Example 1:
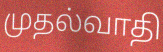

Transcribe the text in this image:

முதல்வாதி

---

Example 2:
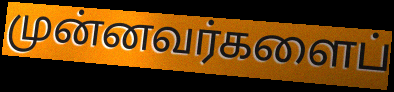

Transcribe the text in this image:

முன்னவர்களைப்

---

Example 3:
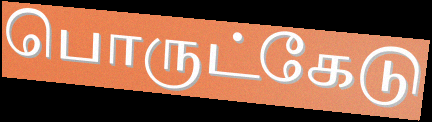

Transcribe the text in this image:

பொருட்கேடு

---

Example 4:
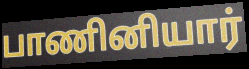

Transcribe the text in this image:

பாணினியார்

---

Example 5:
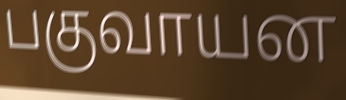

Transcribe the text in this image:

பகுவாயன